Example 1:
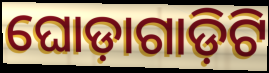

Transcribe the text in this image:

ଘୋଡ଼ାଗାଡ଼ିଟି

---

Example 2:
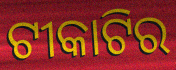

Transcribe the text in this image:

ଟୀକାଟିର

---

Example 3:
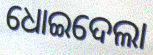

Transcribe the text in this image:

ଧୋଇଦେଲା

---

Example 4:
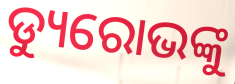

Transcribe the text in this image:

ଡ୍ୟୁରୋଭଙ୍କୁ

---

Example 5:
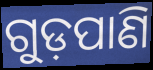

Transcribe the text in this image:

ଗୁଡ଼ପାଣି